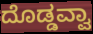
ದೊಡ್ಡವ್ವಾ